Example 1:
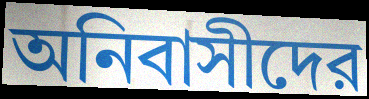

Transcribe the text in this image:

অনিবাসীদের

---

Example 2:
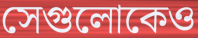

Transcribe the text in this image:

সেগুলোকেও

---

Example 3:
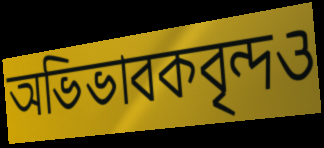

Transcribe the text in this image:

অভিভাবকবৃন্দও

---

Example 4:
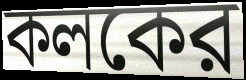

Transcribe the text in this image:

কলকের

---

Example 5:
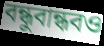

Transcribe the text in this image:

বন্ধুবান্ধবও